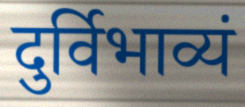
दुर्विभाव्यं